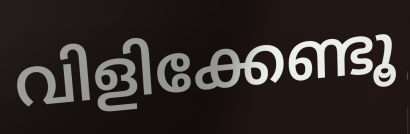
വിളിക്കേണ്ടൂ